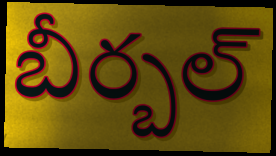
బీర్బల్